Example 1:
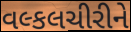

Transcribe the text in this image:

વલ્કલચીરીને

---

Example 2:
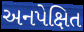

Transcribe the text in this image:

અનપેક્ષિત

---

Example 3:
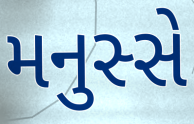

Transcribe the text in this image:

મનુસ્સે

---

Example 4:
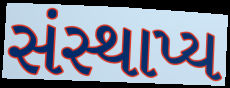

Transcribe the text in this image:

સંસ્થાપ્ય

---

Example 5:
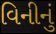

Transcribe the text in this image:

વિનીનું